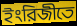
ইংরিজীতে